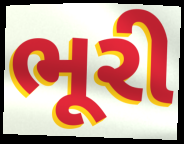
ભૂરી